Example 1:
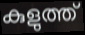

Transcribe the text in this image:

കുളുത്ത്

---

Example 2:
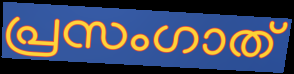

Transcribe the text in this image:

പ്രസംഗാത്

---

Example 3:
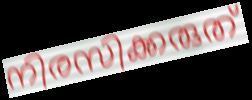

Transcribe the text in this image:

നിരസിക്കരുത്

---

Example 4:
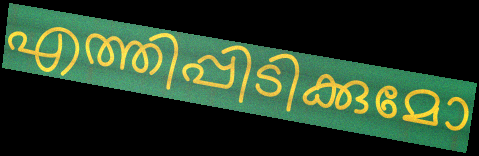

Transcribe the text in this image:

എത്തിപ്പിടിക്കുമോ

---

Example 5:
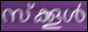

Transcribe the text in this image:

സ്ക്കൂൾ